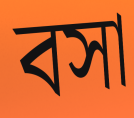
বসা